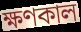
ক্ষণকাল